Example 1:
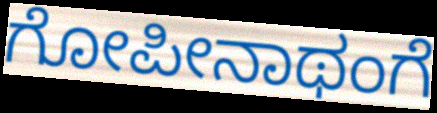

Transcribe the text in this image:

ಗೋಪೀನಾಥಂಗೆ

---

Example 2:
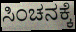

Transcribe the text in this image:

ಸಿಂಚನಕ್ಕೆ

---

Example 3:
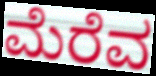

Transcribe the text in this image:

ಮೆರೆವ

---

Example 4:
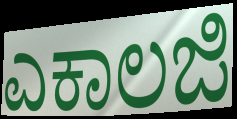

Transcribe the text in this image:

ಎಕಾಲಜಿ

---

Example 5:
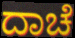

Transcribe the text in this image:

ದಾಚೆ